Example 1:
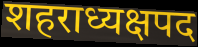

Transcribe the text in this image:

शहराध्यक्षपद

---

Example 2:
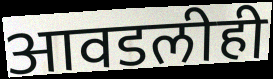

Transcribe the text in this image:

आवडलीही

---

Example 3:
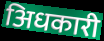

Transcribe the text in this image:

अिधकारी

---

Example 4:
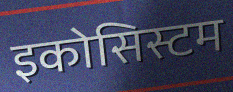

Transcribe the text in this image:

इकोसिस्टम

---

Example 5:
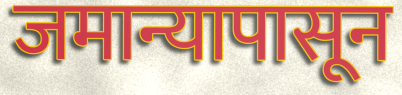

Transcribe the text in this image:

जमान्यापासून